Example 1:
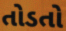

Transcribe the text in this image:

તોડતો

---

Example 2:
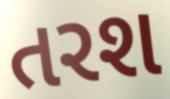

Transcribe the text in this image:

તરશ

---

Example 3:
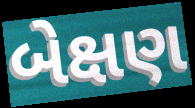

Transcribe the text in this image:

બેક્ષણ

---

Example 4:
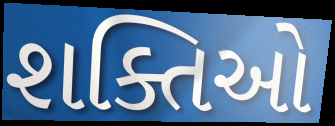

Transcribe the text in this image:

શક્તિઓ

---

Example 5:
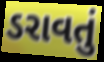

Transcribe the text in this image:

ડરાવતું